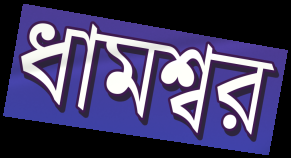
ধামশ্বর